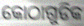
କୋଠାଗୁଡିକ